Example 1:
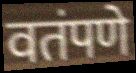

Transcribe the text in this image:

वतंपणे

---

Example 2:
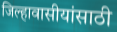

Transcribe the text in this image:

जिल्हावासीयांसाठी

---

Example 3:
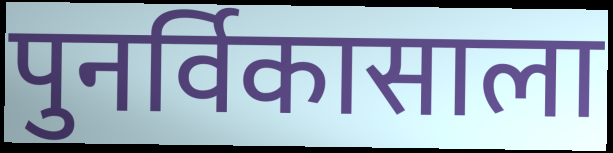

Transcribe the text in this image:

पुनर्विकासाला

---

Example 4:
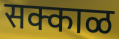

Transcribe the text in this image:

सक्काळ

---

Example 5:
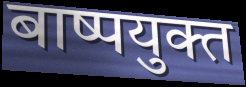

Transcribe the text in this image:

बाष्पयुक्त